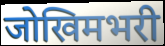
जोखिमभरी